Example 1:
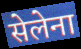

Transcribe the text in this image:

सेलेना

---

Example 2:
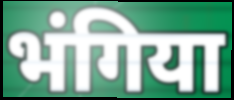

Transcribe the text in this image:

भंगिया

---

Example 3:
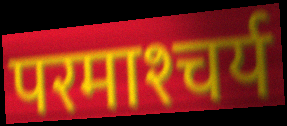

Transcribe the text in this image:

परमाश्चर्य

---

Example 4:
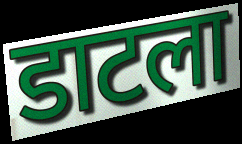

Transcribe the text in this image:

डाटला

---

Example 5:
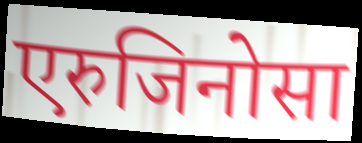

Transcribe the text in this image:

एरुजिनोसा